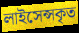
লাইসেন্সকৃত